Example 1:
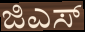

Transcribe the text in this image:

ಜಿಎಸ್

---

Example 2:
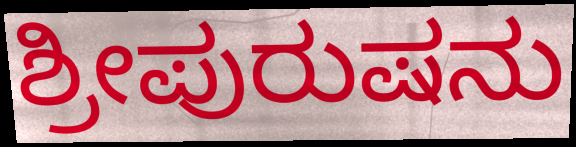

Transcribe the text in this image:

ಶ್ರೀಪುರುಷನು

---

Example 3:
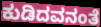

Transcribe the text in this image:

ಕುಡಿದವನಂತೆ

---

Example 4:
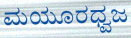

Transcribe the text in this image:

ಮಯೂರಧ್ವಜ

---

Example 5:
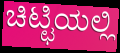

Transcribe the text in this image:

ಚಿಟ್ಟಿಯಲ್ಲಿ